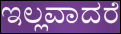
ಇಲ್ಲವಾದರೆ